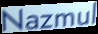
Nazmul